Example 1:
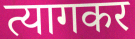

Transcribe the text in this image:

त्यागकर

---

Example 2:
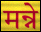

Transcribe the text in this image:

मन्ने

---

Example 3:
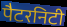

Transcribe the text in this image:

पैटरनिटी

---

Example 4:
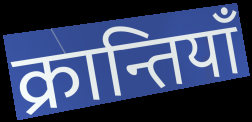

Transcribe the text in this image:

क्रान्तियाँ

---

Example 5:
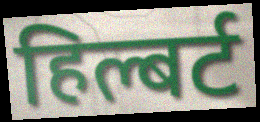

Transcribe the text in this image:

हिल्बर्ट